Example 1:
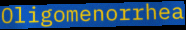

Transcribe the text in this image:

Oligomenorrhea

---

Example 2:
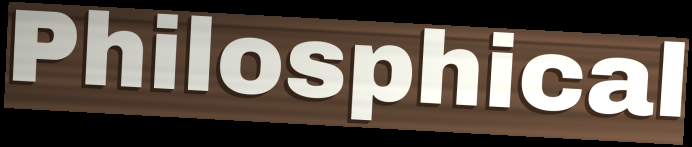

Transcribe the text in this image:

Philosphical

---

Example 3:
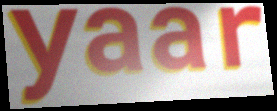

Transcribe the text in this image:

yaar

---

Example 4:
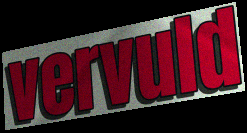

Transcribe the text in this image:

vervuld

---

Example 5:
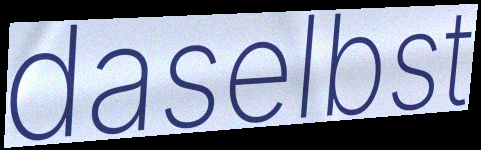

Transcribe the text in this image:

daselbst